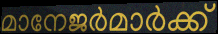
മാനേജർമാർക്ക്